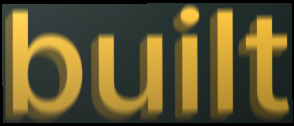
built